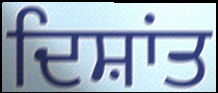
ਦਿਸ਼ਾਂਤ